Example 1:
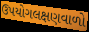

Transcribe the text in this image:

ઉપયોગલક્ષણવાળો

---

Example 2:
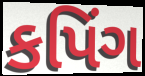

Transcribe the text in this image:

કપિંગ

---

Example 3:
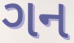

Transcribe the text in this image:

ગન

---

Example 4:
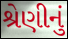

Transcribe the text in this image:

શ્રેણીનું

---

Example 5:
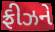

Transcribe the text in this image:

ફ્રીઝને